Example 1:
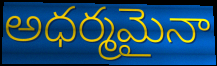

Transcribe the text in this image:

అధర్మమైనా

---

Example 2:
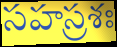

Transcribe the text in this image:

సహస్రశః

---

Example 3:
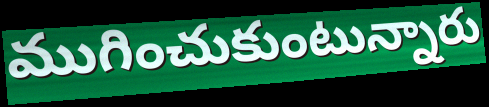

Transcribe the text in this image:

ముగించుకుంటున్నారు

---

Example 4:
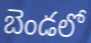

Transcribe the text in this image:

బెండలో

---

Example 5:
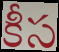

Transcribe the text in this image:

కీస